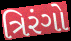
ત્રિરંગો